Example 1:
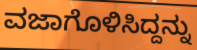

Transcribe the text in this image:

ವಜಾಗೊಳಿಸಿದ್ದನ್ನು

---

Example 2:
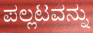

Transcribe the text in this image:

ಪಲ್ಲಟವನ್ನು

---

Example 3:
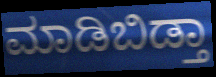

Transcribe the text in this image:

ಮಾಡಿಬಿಡ್ತಾ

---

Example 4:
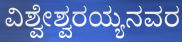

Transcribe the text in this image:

ವಿಶ್ವೇಶ್ವರಯ್ಯನವರ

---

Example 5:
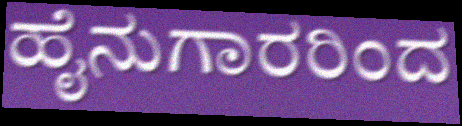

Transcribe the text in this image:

ಹೈನುಗಾರರಿಂದ